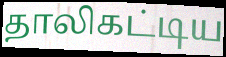
தாலிகட்டிய